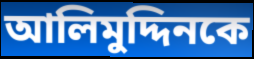
আলিমুদ্দিনকে